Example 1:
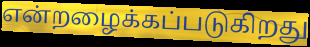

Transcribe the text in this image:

என்றழைக்கப்படுகிறது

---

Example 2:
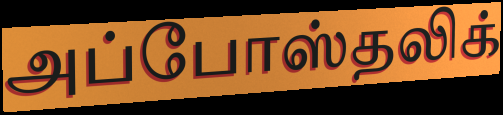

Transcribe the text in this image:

அப்போஸ்தலிக்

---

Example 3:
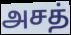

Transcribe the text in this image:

அசத்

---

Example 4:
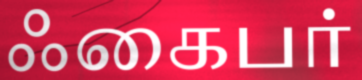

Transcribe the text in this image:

ஃகைபர்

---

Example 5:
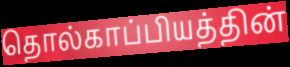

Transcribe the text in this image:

தொல்காப்பியத்தின்